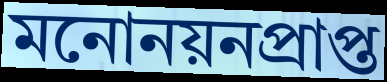
মনোনয়নপ্রাপ্ত